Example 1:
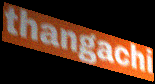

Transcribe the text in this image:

thangachi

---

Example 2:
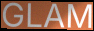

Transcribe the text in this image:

GLAM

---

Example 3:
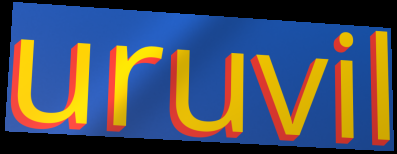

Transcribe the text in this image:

uruvil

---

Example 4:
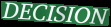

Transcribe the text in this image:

DECISION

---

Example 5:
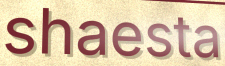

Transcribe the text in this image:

shaesta